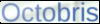
Octobris